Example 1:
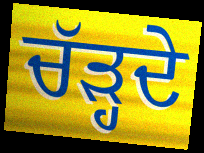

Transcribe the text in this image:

ਚੱੜ੍ਹਦੇ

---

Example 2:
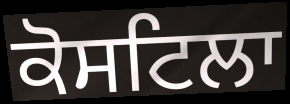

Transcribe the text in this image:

ਕੋਸਟਿਲਾ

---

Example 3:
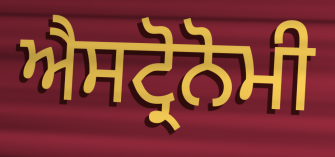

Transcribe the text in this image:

ਐਸਟ੍ਰੋਨੋਮੀ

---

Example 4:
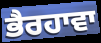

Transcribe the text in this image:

ਭੈਰਹਾਵਾ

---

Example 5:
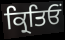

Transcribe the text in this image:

ਕ੍ਰਿਤਿਓਂ